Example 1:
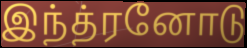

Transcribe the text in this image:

இந்த்ரனோடு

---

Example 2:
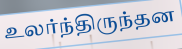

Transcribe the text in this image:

உலர்ந்திருந்தன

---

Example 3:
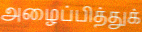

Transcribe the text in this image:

அழைப்பித்துக்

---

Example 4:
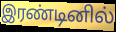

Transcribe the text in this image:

இரண்டினில்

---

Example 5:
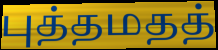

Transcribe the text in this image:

புத்தமதத்